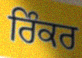
ਰਿੰਕਰ